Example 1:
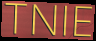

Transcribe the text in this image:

TNIE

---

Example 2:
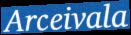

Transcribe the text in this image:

Arceivala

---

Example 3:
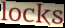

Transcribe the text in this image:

locks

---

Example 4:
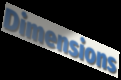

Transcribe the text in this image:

Dimensions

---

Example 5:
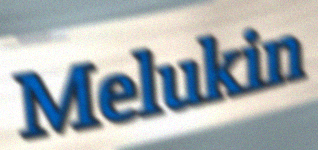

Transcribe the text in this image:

Melukin